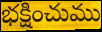
భక్షించుము